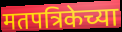
मतपत्रिकेच्या